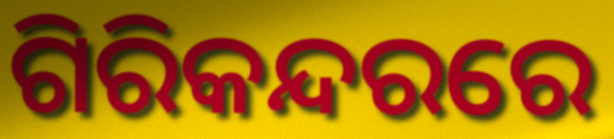
ଗିରିକନ୍ଦରରେ